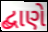
દ્બાણે